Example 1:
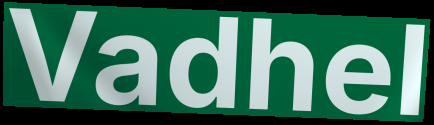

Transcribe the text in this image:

Vadhel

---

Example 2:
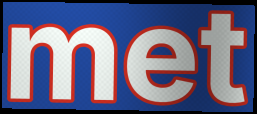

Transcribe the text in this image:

met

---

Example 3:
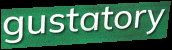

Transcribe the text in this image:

gustatory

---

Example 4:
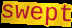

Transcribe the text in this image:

swept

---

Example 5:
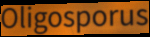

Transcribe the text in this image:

Oligosporus